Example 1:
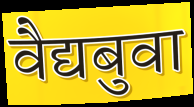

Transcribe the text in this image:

वैद्यबुवा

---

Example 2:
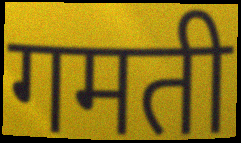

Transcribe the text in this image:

गमती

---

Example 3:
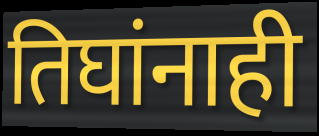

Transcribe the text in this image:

तिघांनाही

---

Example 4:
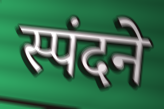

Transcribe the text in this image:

स्पंदने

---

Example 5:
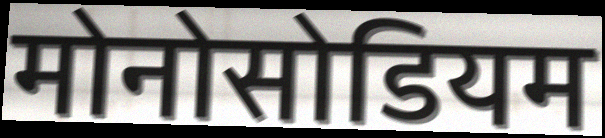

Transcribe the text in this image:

मोनोसोडियम